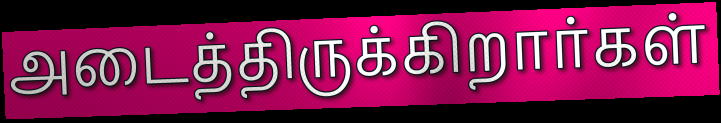
அடைத்திருக்கிறார்கள்